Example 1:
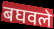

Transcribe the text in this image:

बघवले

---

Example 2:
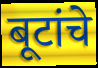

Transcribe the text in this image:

बूटांचे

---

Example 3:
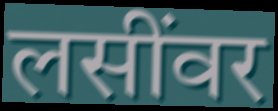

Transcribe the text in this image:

लसींवर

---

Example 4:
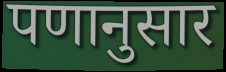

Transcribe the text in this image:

पणानुसार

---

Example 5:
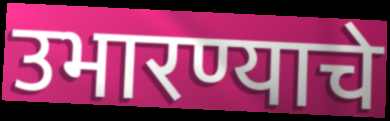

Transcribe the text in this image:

उभारण्याचे